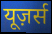
यूज़र्स